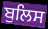
ਬੁਲਿਸ